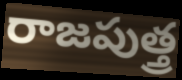
రాజపుత్త్ర